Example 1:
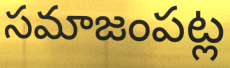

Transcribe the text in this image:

సమాజంపట్ల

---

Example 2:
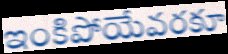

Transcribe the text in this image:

ఇంకిపోయేవరకూ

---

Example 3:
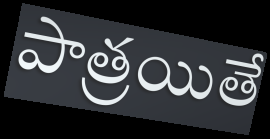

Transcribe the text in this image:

పాత్రయితే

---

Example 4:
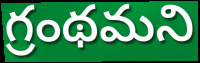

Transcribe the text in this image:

గ్రంథమని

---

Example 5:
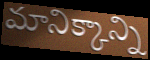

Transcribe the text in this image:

మానిక్కాన్ని